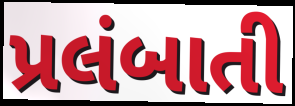
પ્રલંબાતી